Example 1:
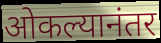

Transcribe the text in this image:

ओकल्यानंतर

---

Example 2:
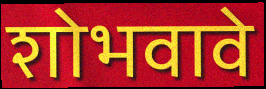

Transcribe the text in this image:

शोभवावे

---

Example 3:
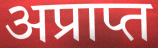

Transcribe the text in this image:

अप्राप्त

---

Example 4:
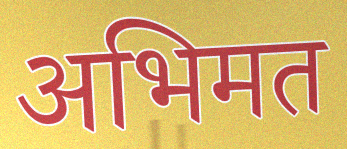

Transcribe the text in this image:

अभिमत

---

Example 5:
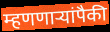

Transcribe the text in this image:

म्हणणाऱ्यांपैकी